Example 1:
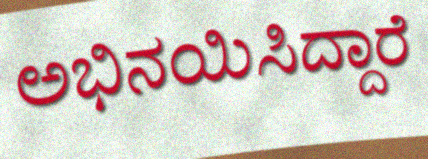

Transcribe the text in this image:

ಅಭಿನಯಿಸಿದ್ದಾರೆ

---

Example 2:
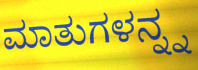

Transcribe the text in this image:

ಮಾತುಗಳನ್ನ್ನ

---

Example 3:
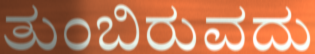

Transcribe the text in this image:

ತುಂಬಿರುವದು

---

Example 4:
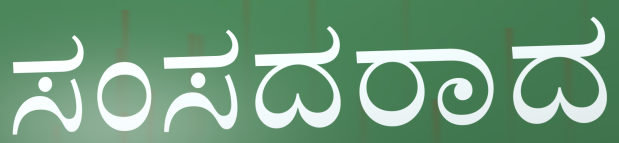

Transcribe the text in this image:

ಸಂಸದರಾದ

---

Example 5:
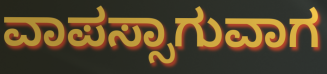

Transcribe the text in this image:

ವಾಪಸ್ಸಾಗುವಾಗ